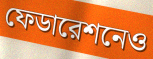
ফেডারেশনেও